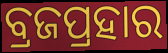
ବ୍ରଜପ୍ରହାର